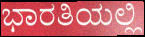
ಭಾರತಿಯಲ್ಲಿ